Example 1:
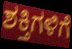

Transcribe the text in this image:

ಶಕ್ತಿಗಳಿಗೆ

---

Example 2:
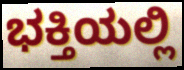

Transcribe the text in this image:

ಭಕ್ತಿಯಲ್ಲಿ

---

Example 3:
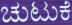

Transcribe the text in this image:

ಚುಟುಕೆ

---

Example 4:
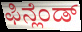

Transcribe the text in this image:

ಫಿನ್ಲೆಂಡ್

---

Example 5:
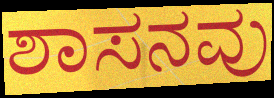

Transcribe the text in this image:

ಶಾಸನವು